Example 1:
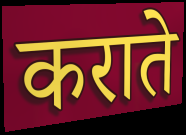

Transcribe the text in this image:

कराते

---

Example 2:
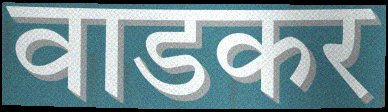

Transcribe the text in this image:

वाडकर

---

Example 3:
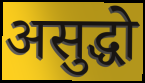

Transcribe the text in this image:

असुद्धो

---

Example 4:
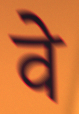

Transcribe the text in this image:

वे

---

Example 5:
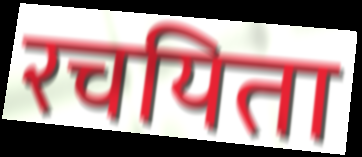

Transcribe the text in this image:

रचयिता